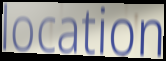
location